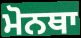
ਮੋਨਥਾ